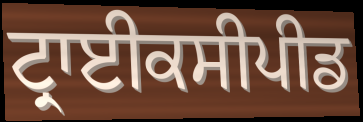
ਟ੍ਰਾਈਕਸੀਪੀਡ